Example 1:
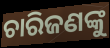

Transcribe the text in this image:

ଚାରିଜଣଙ୍କୁ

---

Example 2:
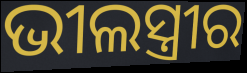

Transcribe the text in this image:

ଭୀଲସ୍ତ୍ରୀର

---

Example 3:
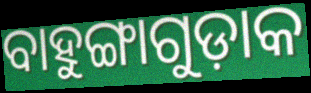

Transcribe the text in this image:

ବାହୁଙ୍ଗାଗୁଡ଼ାକ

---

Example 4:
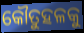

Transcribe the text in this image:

କୌତୁହଳକୁ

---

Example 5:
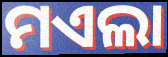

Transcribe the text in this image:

ମଏଲା